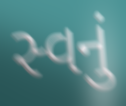
સ્વનું